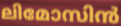
ലിമോസിൻ